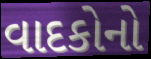
વાદકોનો